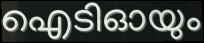
ഐടിഓയും